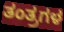
ತಂತ್ರಗಳ